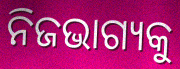
ନିଜଭାଗ୍ୟକୁ